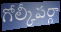
గోల్కీపర్గా